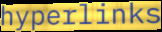
hyperlinks